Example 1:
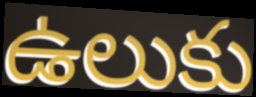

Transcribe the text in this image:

ఉలుకు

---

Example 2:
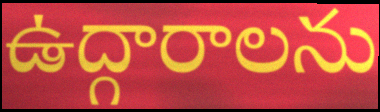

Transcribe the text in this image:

ఉద్గారాలను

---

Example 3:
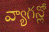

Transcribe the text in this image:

వ్యాగన్లో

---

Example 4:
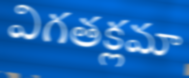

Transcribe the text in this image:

విగతక్లమా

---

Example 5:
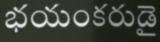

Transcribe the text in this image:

భయంకరుడై